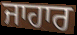
ਜਾਹਾਰ